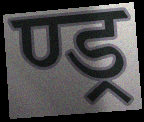
ण्ड्र